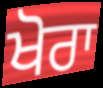
ਖੋਰਾ